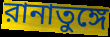
রানাতুঙ্গে